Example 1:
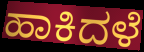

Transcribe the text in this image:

ಹಾಕಿದಳೆ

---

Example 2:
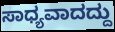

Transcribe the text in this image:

ಸಾಧ್ಯವಾದದ್ದು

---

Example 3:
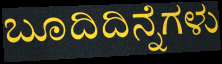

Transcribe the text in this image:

ಬೂದಿದಿನ್ನೆಗಳು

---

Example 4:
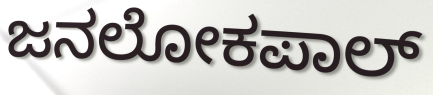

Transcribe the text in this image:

ಜನಲೋಕಪಾಲ್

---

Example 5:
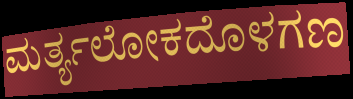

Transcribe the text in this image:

ಮರ್ತ್ಯಲೋಕದೊಳಗಣ